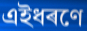
এইধৰণে